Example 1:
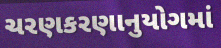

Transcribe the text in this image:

ચરણકરણાનુયોગમાં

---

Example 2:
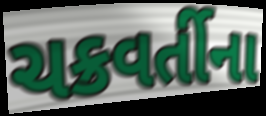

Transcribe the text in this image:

ચક્રવર્તીના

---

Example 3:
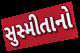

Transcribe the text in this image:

સુસ્મીતાનો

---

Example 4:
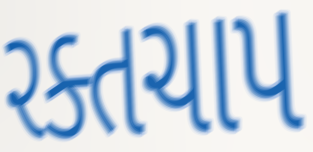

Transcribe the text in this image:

રક્તચાપ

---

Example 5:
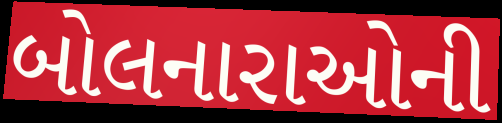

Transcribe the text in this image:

બોલનારાઓની